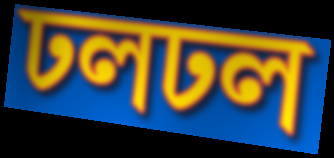
ঢলঢল